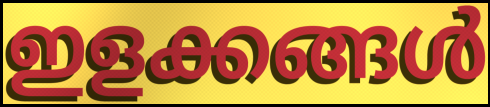
ഇളക്കങ്ങൾ